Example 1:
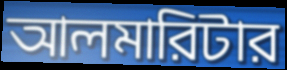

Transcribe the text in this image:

আলমারিটার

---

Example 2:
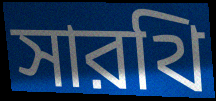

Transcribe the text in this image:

সারথি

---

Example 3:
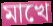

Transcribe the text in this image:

মাখে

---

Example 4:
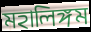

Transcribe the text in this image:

মহালিঙ্গম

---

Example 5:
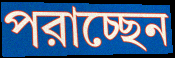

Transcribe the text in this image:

পরাচ্ছেন